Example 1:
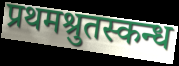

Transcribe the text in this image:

प्रथमश्रुतस्कन्ध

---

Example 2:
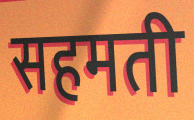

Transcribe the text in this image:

सहमती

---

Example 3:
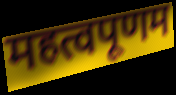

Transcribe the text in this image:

महत्वपूणम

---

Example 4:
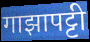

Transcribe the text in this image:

गाझापट्टी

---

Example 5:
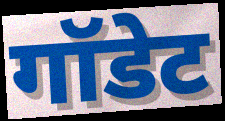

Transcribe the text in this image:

गॉडेट